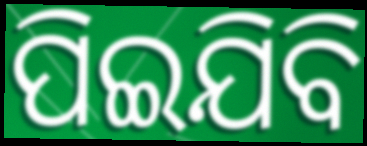
ପିଇଯିବି